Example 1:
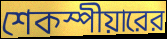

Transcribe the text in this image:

শেকস্পীয়ারের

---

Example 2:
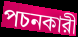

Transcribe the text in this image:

পচনকারী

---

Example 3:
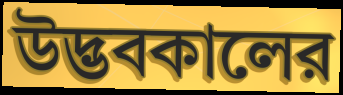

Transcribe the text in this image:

উদ্ভবকালের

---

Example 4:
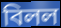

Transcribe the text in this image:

বিলল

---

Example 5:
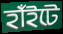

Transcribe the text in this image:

হাঁইটে